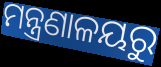
ମନ୍ତ୍ରଣାଳୟରୁ